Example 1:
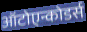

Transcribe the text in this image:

ऑटोएन्कोडर्स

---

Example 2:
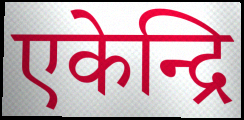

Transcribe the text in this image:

एकेन्द्रि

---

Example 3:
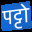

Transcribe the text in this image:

पट्टो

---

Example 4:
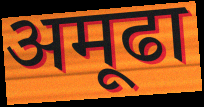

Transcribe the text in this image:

अमूढा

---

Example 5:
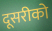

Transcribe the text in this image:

दूसरीको